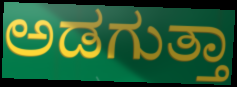
ಅಡಗುತ್ತಾ